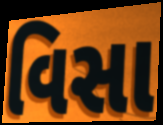
વિસા